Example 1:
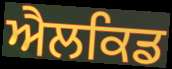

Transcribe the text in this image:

ਐਲਕਿਡ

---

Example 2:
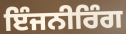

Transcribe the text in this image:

ਇੰਜਨੀਰਿੰਗ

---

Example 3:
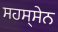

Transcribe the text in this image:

ਸਹਸ੍ਸੇਨ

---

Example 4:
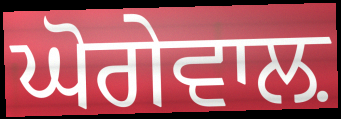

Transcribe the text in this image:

ਘੋਗੇਵਾਲ਼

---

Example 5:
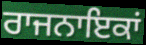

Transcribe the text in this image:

ਰਾਜਨਾਇਕਾਂ